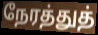
நேரத்துத்